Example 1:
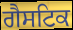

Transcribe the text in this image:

ਗੈਸਟਿਕ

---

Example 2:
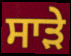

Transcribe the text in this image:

ਸਾੜੇ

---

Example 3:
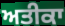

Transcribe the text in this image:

ਅਤੀਕਾ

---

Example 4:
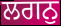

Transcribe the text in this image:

ਲਗਨੁ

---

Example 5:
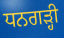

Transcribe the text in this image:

ਧਨਗੜ੍ਹੀ